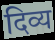
दिव्य